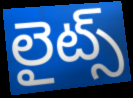
లైట్స్